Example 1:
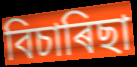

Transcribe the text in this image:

বিচাৰিছা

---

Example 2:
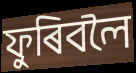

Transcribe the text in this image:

ফুৰিবলৈ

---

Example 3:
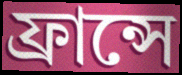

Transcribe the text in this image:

ফ্ৰান্সে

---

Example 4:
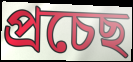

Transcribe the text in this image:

প্ৰচেছ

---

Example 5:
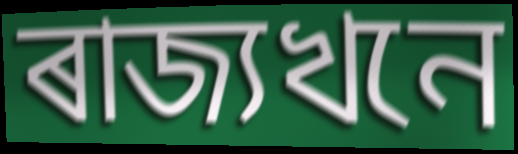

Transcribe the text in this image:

ৰাজ্যখনে